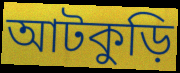
আটকুড়ি